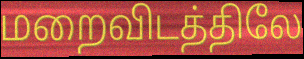
மறைவிடத்திலே